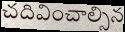
చదివించాల్సిన